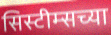
सिस्टीम्सच्या